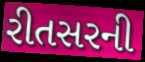
રીતસરની